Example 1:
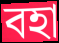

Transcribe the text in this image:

বহা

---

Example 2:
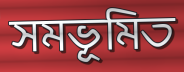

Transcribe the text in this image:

সমভূমিত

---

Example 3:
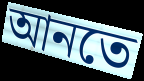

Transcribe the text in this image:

আনতে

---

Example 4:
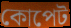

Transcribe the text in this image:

কোপেট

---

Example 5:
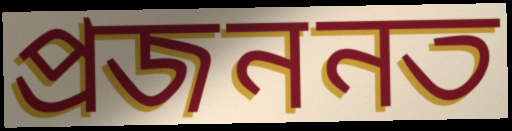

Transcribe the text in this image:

প্ৰজননত